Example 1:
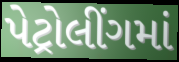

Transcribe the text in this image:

પેટ્રોલીંગમાં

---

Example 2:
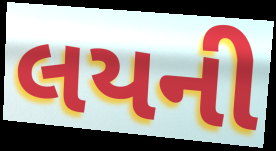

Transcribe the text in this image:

લયની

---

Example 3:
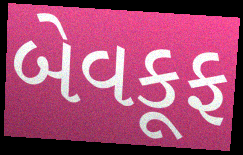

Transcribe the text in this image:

બેવકૂફ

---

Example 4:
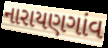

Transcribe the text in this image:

નારાયણગાંવ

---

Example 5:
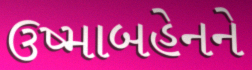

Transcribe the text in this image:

ઉષ્માબહેનને